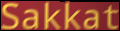
Sakkat